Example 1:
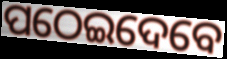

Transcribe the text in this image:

ପଠେଇଦେବେ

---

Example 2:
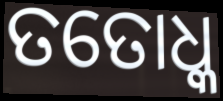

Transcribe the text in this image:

ତତୋଧ୍କ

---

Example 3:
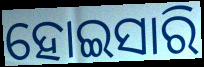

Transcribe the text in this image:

ହୋଇସାରି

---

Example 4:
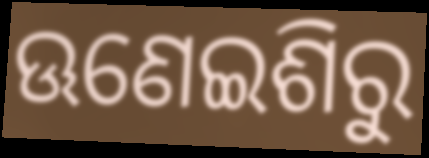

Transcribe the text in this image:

ଊଣେଇଶିରୁ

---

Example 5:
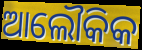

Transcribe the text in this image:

ଆଲୌକିକ